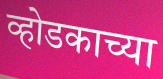
व्होडकाच्या